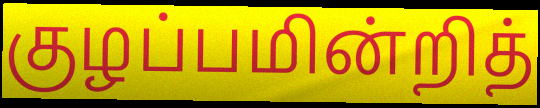
குழப்பமின்றித்